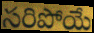
సరిపోయే